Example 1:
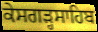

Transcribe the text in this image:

ਕੇਸਗੜ੍ਹਸਾਹਿਬ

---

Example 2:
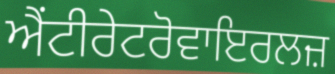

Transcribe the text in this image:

ਐਂਟੀਰੇਟਰੋਵਾਇਰਲਜ਼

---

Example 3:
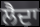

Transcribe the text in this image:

ਲੈਦਾ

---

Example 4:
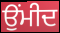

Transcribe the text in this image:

ਉਂਮੀਦ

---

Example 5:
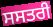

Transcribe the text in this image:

ਸਸਤਰੀ